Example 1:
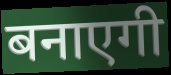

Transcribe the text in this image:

बनाएगी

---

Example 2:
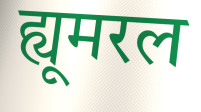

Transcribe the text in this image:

ह्यूमरल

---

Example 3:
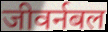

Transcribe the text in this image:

जीवर्नबल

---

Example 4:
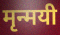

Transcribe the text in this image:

मृन्मयी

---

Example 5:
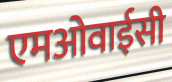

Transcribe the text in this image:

एमओवाईसी